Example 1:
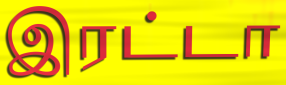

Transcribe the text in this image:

இரட்டா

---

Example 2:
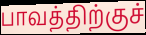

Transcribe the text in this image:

பாவத்திற்குச்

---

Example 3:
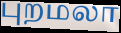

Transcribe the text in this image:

புறமலா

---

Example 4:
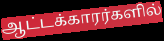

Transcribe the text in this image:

ஆட்டக்காரர்களில்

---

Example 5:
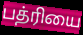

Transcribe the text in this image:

பத்ரியை